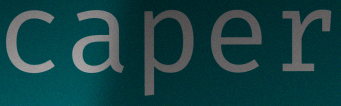
caper